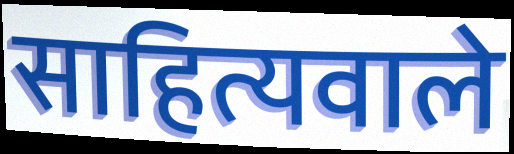
साहित्यवाले